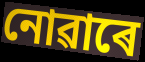
নোৱাৰে